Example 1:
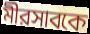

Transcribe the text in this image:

মীরসাবকে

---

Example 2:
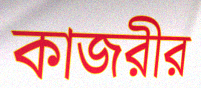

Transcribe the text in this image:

কাজরীর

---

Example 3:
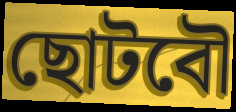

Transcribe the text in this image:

ছোটবৌ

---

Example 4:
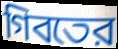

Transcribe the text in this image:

গিবতের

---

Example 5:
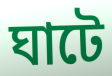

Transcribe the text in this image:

ঘাটে